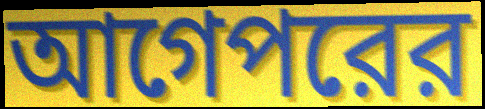
আগেপরের